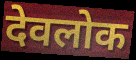
देवलोक